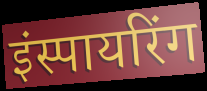
इंस्पायरिंग